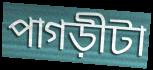
পাগড়ীটা